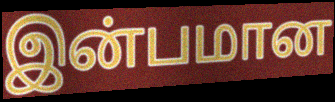
இன்பமான